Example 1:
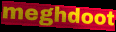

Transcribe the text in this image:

meghdoot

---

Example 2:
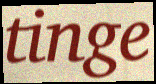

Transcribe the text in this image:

tinge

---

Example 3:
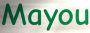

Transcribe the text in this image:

Mayou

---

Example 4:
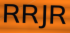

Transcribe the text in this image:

RRJR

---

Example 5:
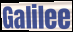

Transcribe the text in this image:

Galilee